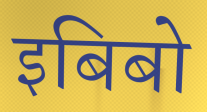
इबिबो